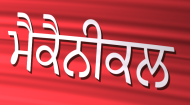
ਮੈਕੈਨੀਕਲ